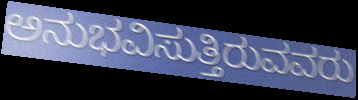
ಅನುಭವಿಸುತ್ತಿರುವವರು